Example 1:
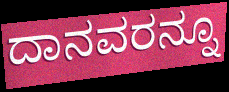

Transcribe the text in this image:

ದಾನವರನ್ನೂ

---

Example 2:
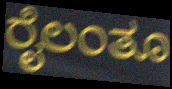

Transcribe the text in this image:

ರೈಲಂತೂ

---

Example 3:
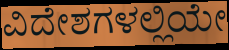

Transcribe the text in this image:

ವಿದೇಶಗಳಲ್ಲಿಯೇ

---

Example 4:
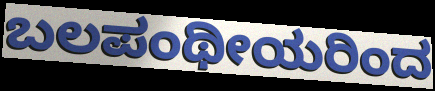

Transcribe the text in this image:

ಬಲಪಂಥೀಯರಿಂದ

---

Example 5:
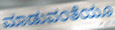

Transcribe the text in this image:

ಮಾಡುವಂತೆಯೂ